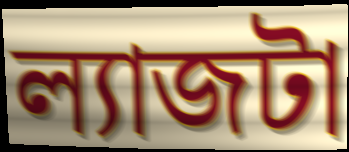
ল্যাজটা